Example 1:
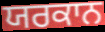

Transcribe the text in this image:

ਯਰਕਾਨ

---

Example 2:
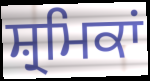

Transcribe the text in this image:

ਸ਼੍ਰਮਿਕਾਂ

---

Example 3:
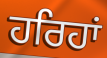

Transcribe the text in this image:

ਹਰਿਹਾਂ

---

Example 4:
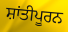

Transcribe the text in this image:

ਸ਼ਾਂਤੀਪੂਰਨ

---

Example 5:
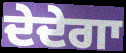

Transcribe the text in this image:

ਦੇਦੇਗਾ